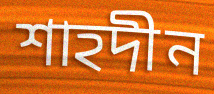
শাহদীন